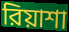
রিয়াশা